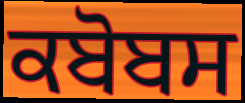
ਕਬੋਬਸ